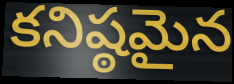
కనిష్ఠమైన